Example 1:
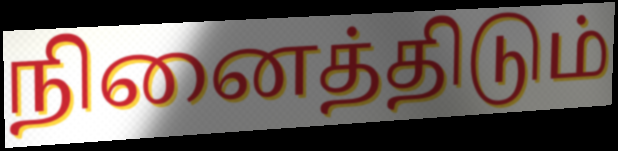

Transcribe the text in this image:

நினைத்திடும்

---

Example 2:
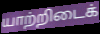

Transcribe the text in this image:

யாற்றிடைக்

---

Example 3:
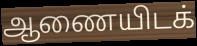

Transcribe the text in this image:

ஆணையிடக்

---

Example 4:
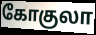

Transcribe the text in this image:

கோகுலா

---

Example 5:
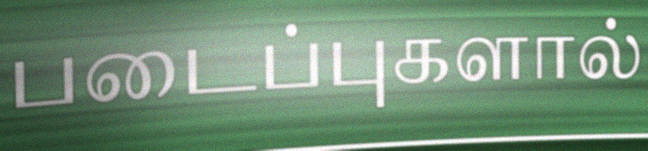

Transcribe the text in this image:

படைப்புகளால்